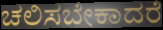
ಚಲಿಸಬೇಕಾದರೆ